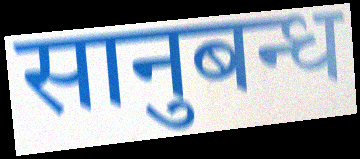
सानुबन्ध